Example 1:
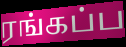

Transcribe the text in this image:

ரங்கப்ப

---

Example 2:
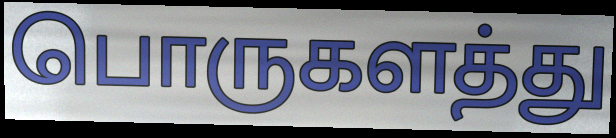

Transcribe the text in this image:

பொருகளத்து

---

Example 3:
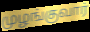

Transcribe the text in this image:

முழங்குவார்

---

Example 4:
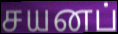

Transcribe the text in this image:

சயனப்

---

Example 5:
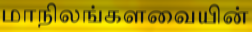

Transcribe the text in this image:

மாநிலங்களவையின்